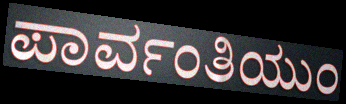
ಪಾರ್ವಂತಿಯುಂ